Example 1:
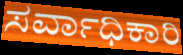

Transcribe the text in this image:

ಸರ್ವಾಧಿಕಾರಿ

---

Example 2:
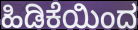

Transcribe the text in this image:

ಹಿಡಿಕೆಯಿಂದ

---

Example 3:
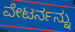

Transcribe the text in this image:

ವೇಟರ್ನನ್ನು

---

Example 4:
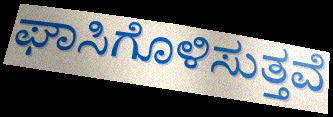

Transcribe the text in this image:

ಘಾಸಿಗೊಳಿಸುತ್ತವೆ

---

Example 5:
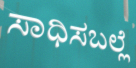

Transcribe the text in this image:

ಸಾಧಿಸಬಲ್ಲೆ